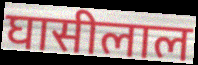
घासीलाल